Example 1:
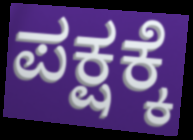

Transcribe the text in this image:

ಪಕ್ಷಕ್ಕೆ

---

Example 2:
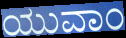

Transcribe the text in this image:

ಯುವಾಂ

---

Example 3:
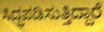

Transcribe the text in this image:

ಸಿದ್ಧಪಡಿಸುತ್ತಿದ್ದಾರೆ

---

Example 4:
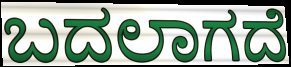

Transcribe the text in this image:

ಬದಲಾಗದೆ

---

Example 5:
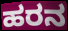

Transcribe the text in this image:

ಹರನ